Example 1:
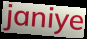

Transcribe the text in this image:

janiye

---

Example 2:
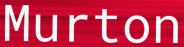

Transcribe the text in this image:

Murton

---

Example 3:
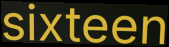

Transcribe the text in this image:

sixteen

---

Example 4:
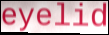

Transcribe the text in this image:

eyelid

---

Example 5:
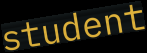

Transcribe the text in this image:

student